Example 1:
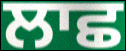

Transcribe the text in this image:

ਲਾਛ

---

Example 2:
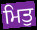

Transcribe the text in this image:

ਮਿਤੁ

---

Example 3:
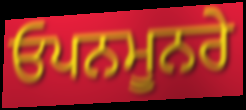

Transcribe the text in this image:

ਓਪਨਮੂਨਰੇ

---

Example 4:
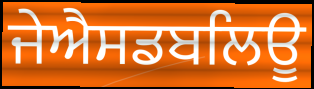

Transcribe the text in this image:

ਜੇਐਸਡਬਲਿਊ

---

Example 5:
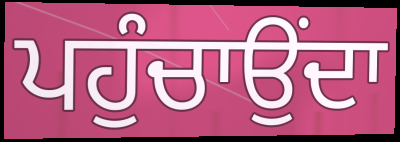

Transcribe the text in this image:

ਪਹੁੰਚਾਉਂਦਾ